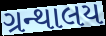
ગ્રન્થાલય